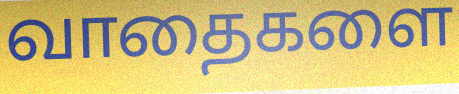
வாதைகளை